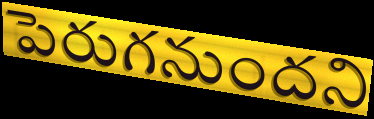
పెరుగనుందని